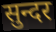
सुन्दर